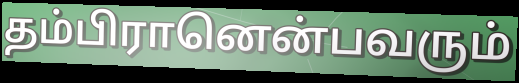
தம்பிரானென்பவரும்